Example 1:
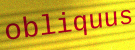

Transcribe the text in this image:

obliquus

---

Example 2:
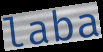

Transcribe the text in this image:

laba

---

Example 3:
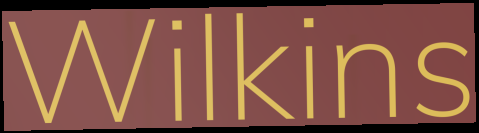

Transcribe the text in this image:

Wilkins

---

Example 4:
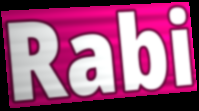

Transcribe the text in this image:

Rabi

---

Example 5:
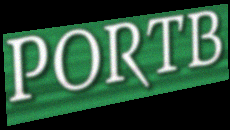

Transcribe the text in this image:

PORTB